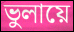
ভুলায়ে